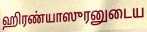
ஹிரண்யாஸுரனுடைய